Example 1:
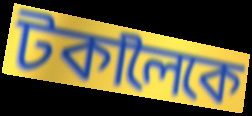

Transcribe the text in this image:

টকালৈকে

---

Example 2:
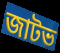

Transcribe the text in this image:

জাটভ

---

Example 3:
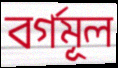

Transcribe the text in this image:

বৰ্গমূল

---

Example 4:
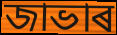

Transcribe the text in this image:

জাভাৰ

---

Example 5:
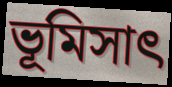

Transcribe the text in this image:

ভূমিসাৎ